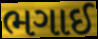
ભગાઈ